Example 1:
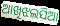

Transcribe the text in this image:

ଆଖିଝଲସିଆ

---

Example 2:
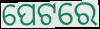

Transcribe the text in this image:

ପେଟରେ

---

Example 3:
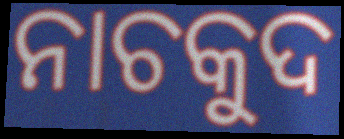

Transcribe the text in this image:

ନାଚକୁଦ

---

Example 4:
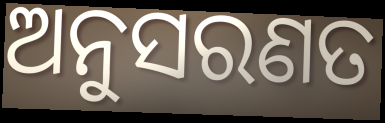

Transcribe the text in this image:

ଅନୁସରଣତ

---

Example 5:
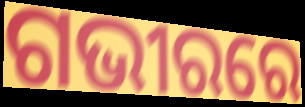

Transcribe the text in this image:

ଗଭୀରରେ